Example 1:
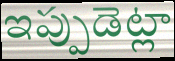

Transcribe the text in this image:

ఇప్పుడెట్లా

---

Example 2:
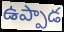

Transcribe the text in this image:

ఉప్పాడ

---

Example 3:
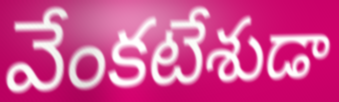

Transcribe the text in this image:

వేంకటేశుడా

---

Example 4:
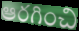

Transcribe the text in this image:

ఆరగించి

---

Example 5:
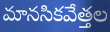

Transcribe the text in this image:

మానసికవేత్తల